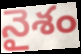
నైశం